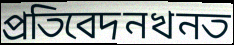
প্ৰতিবেদনখনত